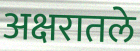
अक्षरातले